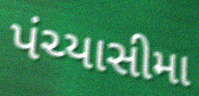
પંચ્યાસીમા